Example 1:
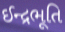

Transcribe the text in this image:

ઈન્દ્રભૂતિ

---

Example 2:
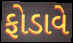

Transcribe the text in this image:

ફોડાવે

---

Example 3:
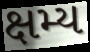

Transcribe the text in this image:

ક્ષમ્ય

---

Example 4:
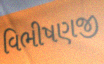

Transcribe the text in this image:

વિભીષણજી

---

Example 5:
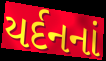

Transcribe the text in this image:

યર્દનનાં